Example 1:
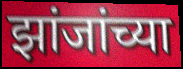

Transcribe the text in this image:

झांजांच्या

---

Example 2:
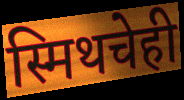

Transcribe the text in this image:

स्मिथचेही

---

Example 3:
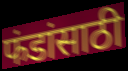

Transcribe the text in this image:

फंडांसाठी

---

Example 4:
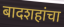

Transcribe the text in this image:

बादशहांचा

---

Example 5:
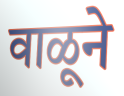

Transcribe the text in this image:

वाळूने